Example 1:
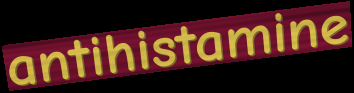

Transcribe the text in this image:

antihistamine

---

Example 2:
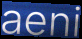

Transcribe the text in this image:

aeni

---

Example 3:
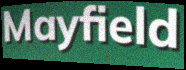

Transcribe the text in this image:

Mayfield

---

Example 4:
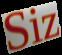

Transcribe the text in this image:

Siz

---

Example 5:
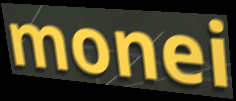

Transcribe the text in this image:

monei